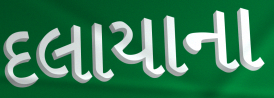
દલાયાના